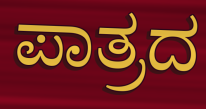
ಪಾತ್ರದ